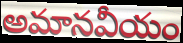
అమానవీయం